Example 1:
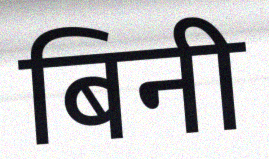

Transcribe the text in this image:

बिनी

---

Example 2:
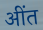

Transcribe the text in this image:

अींत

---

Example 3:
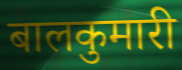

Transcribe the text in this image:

बालकुमारी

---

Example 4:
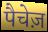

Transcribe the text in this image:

पैचेज़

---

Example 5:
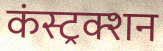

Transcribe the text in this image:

कंस्ट्रक्शन